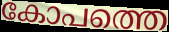
കോപത്തെ